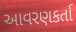
આવરણકર્તા